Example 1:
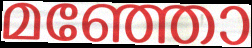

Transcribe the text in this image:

മഞ്ഞോ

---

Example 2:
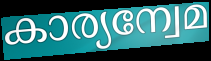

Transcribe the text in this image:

കാര്യന്വേമ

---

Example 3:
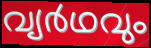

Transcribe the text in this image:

വ്യർഥവും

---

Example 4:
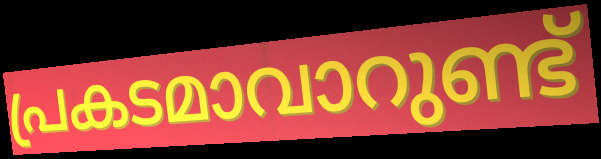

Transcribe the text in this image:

പ്രകടമാവാറുണ്ട്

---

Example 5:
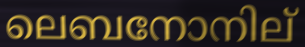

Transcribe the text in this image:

ലെബനോനില്